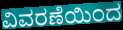
ವಿವರಣೆಯಿಂದ